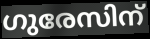
ഗുരേസിന്